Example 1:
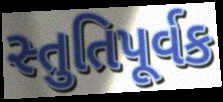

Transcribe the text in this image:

સ્તુતિપૂર્વક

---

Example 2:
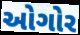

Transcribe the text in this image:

ઓગોર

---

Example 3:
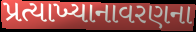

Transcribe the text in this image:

પ્રત્યાખ્યાનાવરણના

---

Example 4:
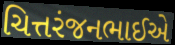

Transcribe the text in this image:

ચિત્તરંજનભાઈએ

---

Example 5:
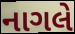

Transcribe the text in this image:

નાગલે